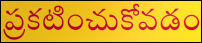
ప్రకటించుకోవడం